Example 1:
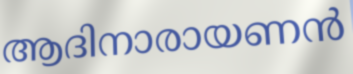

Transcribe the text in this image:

ആദിനാരായണൻ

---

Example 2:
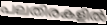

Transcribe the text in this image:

പലതിരകളിൽ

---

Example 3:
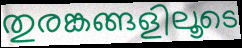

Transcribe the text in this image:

തുരങ്കങ്ങളിലൂടെ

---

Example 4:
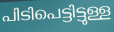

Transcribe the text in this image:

പിടിപെട്ടിട്ടുള്ള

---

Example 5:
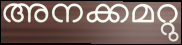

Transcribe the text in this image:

അനക്കമറ്റു